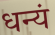
धन्यं